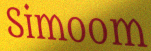
Simoom